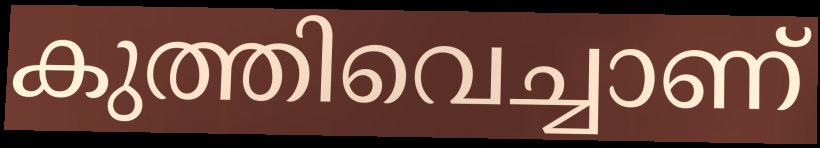
കുത്തിവെച്ചാണ്